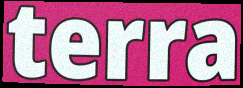
terra